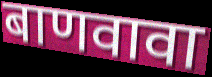
बाणवावा